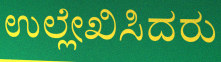
ಉಲ್ಲೇಖಿಸಿದರು